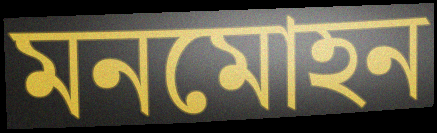
মনমোহন